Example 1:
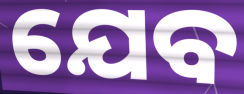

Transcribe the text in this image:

ଯେବ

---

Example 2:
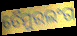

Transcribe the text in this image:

ତୈମୁରଲଂଗ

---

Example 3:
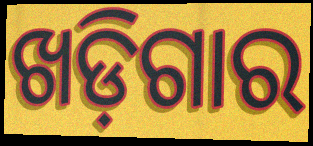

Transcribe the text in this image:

ଖଡ଼ିଗାର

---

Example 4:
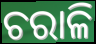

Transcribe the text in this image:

ଚରାଳି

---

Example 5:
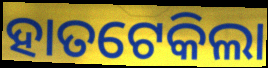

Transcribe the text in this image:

ହାତଟେକିଲା